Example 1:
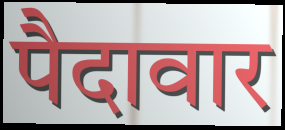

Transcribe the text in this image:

पैदावार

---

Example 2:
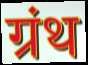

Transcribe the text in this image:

ग्रंथ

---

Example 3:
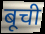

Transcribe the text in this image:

बूची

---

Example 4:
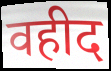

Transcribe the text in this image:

वहीद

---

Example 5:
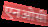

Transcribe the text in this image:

एनओसी